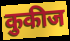
कुकीज